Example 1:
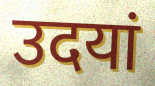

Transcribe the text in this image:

उदयां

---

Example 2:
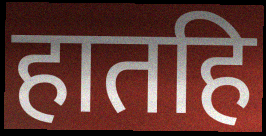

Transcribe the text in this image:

हातहि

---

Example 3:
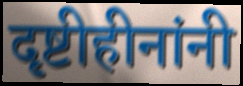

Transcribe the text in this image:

दृष्टीहीनांनी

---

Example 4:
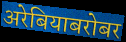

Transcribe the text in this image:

अरेबियाबरोबर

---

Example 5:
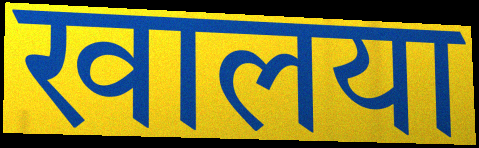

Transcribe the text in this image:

खालया